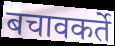
बचावकर्ते